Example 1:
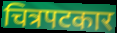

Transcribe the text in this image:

चित्रपटकार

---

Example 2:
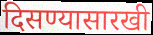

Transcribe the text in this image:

दिसण्यासारखी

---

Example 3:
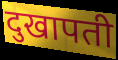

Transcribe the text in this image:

दुखापती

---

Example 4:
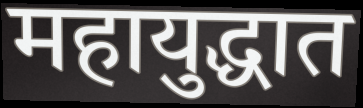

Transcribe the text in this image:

महायुद्धात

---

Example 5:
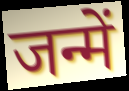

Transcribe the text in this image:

जन्में